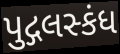
પુદ્ગલસ્કંધ